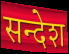
सन्देश